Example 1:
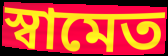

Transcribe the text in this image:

স্বামেত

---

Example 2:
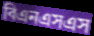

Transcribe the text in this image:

বিএনএসএস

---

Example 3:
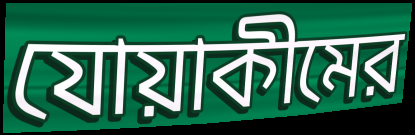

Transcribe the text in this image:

যোয়াকীমের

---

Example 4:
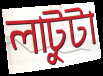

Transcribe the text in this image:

লাটুটা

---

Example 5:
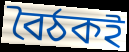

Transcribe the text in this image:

বৈঠকই